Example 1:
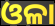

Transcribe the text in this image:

ଓଳା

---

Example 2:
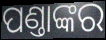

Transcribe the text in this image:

ପଣ୍ତାଙ୍କର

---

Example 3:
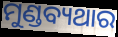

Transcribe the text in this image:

ମୁଣ୍ଡବ୍ୟଥାର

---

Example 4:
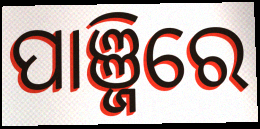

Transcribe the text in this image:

ପାଞ୍ଜିରେ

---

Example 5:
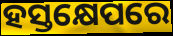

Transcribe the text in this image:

ହସ୍ତକ୍ଷେପରେ